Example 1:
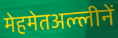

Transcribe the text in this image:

मेहमेतअल्लीनें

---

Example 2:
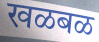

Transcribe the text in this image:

खळबळ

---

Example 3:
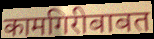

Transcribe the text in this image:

कामगिरीबाबत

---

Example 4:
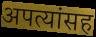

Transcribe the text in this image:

अपत्यांसह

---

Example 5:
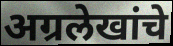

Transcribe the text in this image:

अग्रलेखांचे